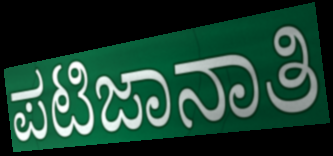
ಪಟಿಜಾನಾತಿ